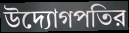
উদ্যোগপতির